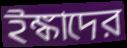
ইঙ্কাদের